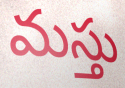
మస్తు